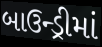
બાઉન્ડ્રીમાં